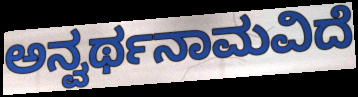
ಅನ್ವರ್ಥನಾಮವಿದೆ